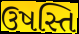
ઉષસ્તિ